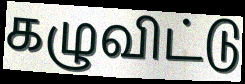
கழுவிட்டு